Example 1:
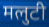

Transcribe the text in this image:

मलुटी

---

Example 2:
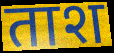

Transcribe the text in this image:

ताश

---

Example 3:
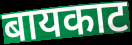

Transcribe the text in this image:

बायकाट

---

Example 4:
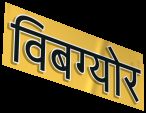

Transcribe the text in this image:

विबग्योर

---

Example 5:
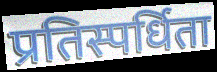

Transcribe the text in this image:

प्रतिस्पर्धिता